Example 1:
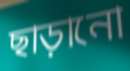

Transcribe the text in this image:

ছাড়ানো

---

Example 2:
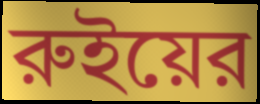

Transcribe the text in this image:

রুইয়ের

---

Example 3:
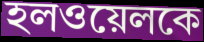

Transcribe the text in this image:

হলওয়েলকে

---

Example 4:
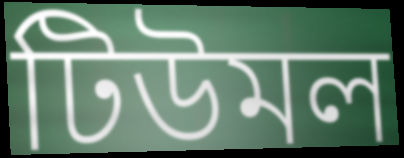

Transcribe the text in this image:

টিউমল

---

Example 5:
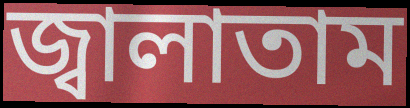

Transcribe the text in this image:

জ্বালাতাম